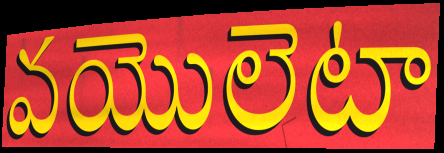
వయొలెటా